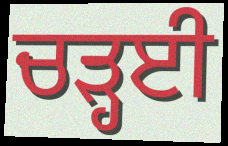
ਚੜ੍ਹਈ